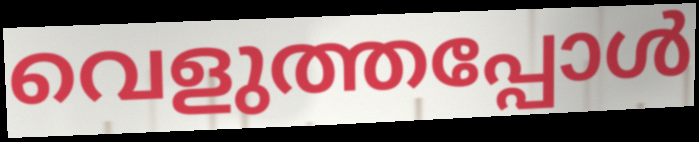
വെളുത്തപ്പോൾ